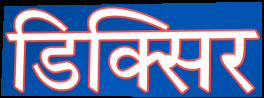
डिक्सिर